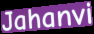
Jahanvi